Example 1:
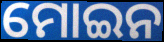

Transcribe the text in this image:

ମୋଇନ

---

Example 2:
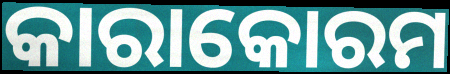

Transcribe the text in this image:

କାରାକୋରମ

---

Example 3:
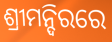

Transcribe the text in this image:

ଶ୍ରୀମନ୍ଦିରରେ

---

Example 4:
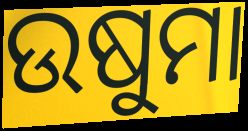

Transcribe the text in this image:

ଉଷୁମା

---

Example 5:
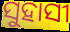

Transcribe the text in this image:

ସୁହାସୀ